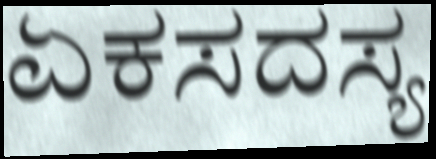
ಏಕಸದಸ್ಯ